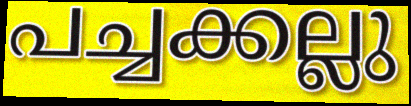
പച്ചക്കല്ലു